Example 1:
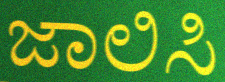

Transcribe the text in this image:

ಜಾಲಿಸಿ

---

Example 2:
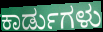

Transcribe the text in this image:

ಕಾರ್ಡುಗಳು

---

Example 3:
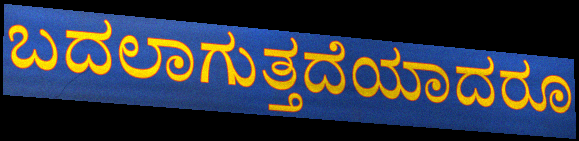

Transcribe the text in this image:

ಬದಲಾಗುತ್ತದೆಯಾದರೂ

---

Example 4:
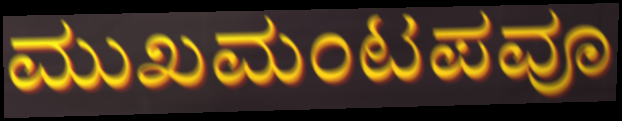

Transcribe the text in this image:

ಮುಖಮಂಟಪವೂ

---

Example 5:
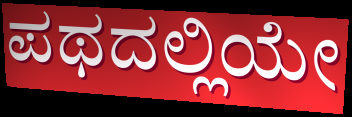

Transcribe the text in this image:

ಪಥದಲ್ಲಿಯೇ